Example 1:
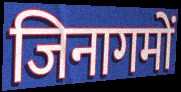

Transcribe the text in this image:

जिनागमों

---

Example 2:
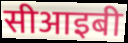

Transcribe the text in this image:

सीआइबी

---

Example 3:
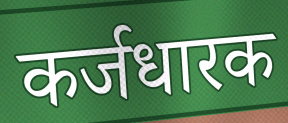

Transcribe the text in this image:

कर्जधारक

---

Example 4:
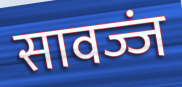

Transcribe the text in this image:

सावज्जं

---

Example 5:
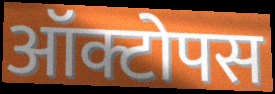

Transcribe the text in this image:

ऑक्टोपस